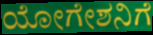
ಯೋಗೇಶನಿಗೆ